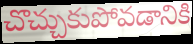
చొచ్చుకుపోవడానికి